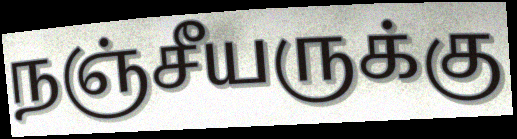
நஞ்சீயருக்கு